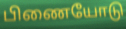
பிணையோடு